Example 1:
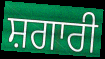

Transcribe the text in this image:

ਸ਼ਗਾਰੀ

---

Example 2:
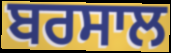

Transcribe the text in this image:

ਬਰਸਾਲ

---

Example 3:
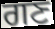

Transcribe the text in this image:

ਗਣ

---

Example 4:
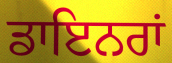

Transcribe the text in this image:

ਡਾਇਨਰਾਂ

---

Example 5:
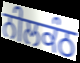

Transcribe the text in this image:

ਨੀਲਕੰਠ